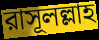
রাসূলল্লাহ